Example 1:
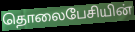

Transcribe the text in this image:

தொலைபேசியின்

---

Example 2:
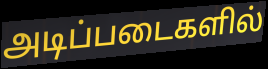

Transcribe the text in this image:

அடிப்படைகளில்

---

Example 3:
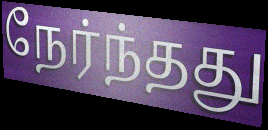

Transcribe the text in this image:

நேர்ந்தது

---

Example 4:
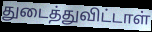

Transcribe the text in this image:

துடைத்துவிட்டாள்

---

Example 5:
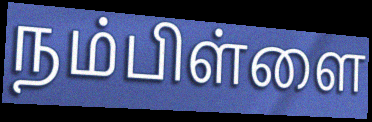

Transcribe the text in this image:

நம்பிள்ளை